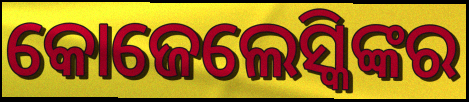
କୋଜେଲେସ୍କିଙ୍କର